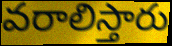
వరాలిస్తారు